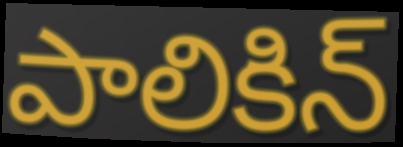
పాలికిన్